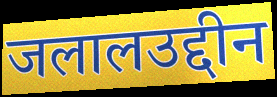
जलालउद्दीन